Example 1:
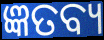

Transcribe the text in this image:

ଜ୍ଞତବ୍ୟ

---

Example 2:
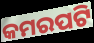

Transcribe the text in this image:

କମରପଟି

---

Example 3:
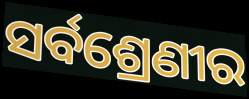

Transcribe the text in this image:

ସର୍ବଶ୍ରେଣୀର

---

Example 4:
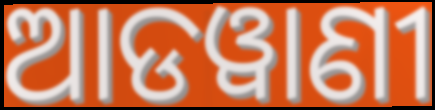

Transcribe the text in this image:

ଆଡୱାଣୀ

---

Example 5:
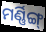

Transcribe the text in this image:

ମର୍ଣ୍ଣିଙ୍ଗ୍